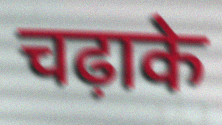
चढ़ाके